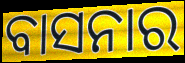
ବାସନାର